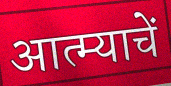
आत्म्याचें